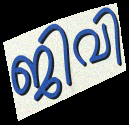
ജിവി